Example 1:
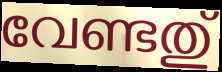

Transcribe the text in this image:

വേണ്ടതു്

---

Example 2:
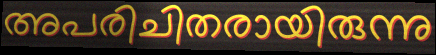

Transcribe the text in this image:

അപരിചിതരായിരുന്നു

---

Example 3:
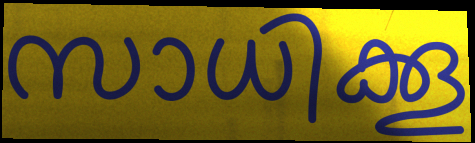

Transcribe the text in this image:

സാധിക്കൂ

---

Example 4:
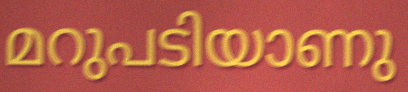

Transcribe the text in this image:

മറുപടിയാണു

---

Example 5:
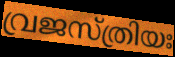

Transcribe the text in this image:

വ്രജസ്ത്രിയഃ